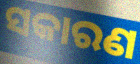
ସକାରଣ